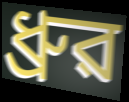
ধ্ৰুৱ